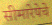
सीमारेषेचे